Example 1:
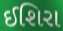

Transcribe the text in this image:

ઈશિરા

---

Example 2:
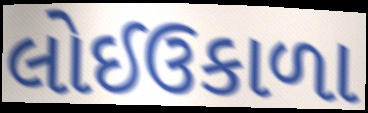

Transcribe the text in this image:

લોઈઉકાળા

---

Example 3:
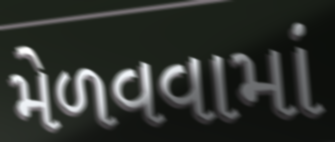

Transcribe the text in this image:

મેળવવામાં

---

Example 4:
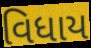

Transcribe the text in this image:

વિધાય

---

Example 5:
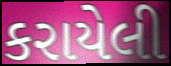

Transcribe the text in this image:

કરાયેલી